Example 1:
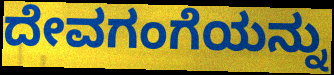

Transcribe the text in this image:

ದೇವಗಂಗೆಯನ್ನು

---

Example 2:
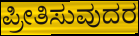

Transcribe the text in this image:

ಪ್ರೀತಿಸುವುದರ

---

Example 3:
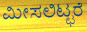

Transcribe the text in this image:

ಮೀಸಲಿಟ್ಟರೆ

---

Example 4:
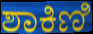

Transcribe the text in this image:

ಶಾಕಿಣಿ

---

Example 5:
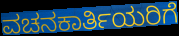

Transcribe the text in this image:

ವಚನಕಾರ್ತಿಯರಿಗೆ